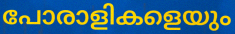
പോരാളികളെയും